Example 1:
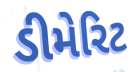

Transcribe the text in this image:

ડીમેરિટ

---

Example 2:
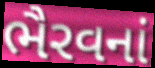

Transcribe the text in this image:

ભૈરવનાં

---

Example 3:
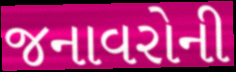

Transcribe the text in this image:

જનાવરોની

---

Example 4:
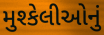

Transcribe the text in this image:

મુશ્કેલીઓનું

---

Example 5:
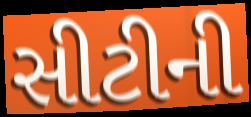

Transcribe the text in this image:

સીટીની